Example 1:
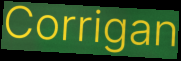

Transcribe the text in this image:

Corrigan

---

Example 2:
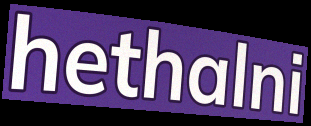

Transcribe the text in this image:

hethalni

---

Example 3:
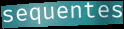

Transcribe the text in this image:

sequentes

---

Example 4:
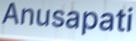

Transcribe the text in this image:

Anusapati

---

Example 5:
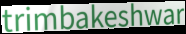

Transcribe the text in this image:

trimbakeshwar